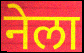
नेला